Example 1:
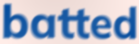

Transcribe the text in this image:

batted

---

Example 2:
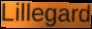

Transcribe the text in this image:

Lillegard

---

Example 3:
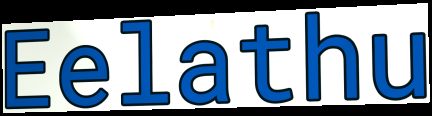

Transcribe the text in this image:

Eelathu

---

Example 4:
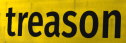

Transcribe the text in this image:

treason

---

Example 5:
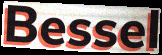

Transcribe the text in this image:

Bessel